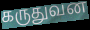
கருதுவன